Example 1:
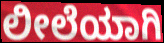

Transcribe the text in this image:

ಲೀಲೆಯಾಗಿ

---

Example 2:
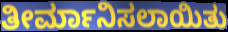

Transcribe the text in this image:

ತೀರ್ಮಾನಿಸಲಾಯಿತು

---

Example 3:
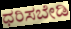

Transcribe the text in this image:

ಧರಿಸಬೇಡಿ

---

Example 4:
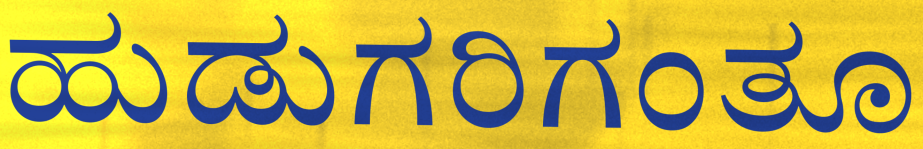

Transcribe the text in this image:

ಹುಡುಗರಿಗಂತೂ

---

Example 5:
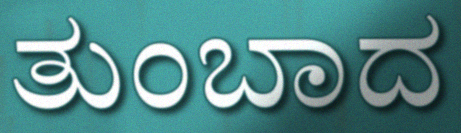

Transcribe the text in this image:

ತುಂಬಾದ